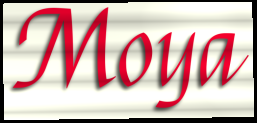
Moya